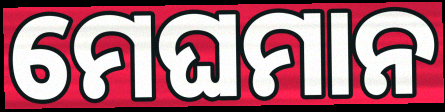
ମେଘମାନ